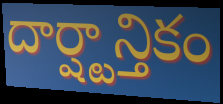
దార్ష్టాన్తికం